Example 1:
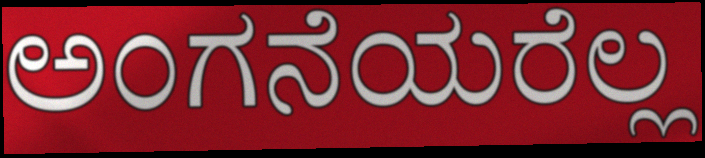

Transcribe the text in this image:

ಅಂಗನೆಯರೆಲ್ಲ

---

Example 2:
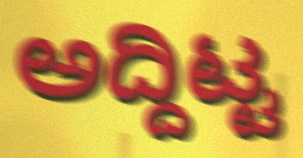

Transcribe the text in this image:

ಅದ್ದಿಟ್ಟ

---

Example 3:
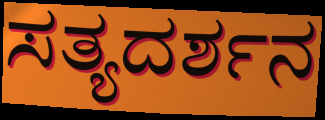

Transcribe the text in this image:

ಸತ್ಯದರ್ಶನ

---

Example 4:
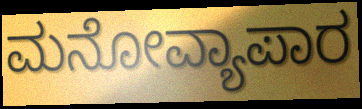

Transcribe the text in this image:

ಮನೋವ್ಯಾಪಾರ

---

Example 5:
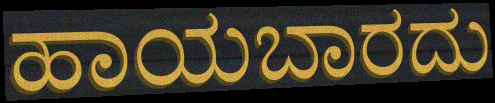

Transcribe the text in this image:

ಹಾಯಬಾರದು